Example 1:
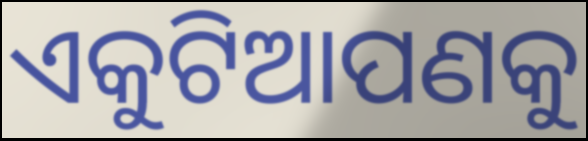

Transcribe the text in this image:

ଏକୁଟିଆପଣକୁ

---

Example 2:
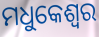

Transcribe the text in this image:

ମଧୁକେଶ୍ୱର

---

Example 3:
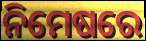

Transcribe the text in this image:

ନିମେଷରେ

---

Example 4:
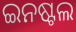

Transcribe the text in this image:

ଇନଷ୍ଟଲ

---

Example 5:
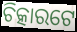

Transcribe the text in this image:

ଚିତ୍କାରଟେ